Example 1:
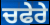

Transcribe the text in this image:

ਚਫੇਰੇ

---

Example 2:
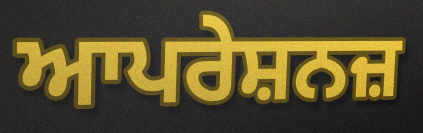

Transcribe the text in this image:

ਆਪਰੇਸ਼ਨਜ਼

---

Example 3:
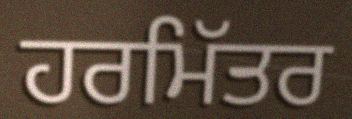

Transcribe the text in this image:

ਹਰਮਿੱਤਰ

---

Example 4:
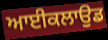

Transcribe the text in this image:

ਆਈਕਲਾਉਡ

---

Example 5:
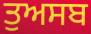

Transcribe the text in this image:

ਤੁਅਸਬ